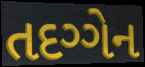
તદગ્ગેન